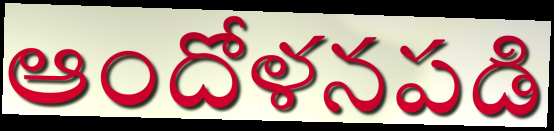
ఆందోళనపడి